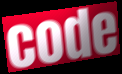
code